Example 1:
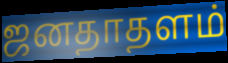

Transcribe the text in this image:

ஜனதாதளம்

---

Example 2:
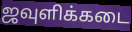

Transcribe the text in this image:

ஜவுளிக்கடை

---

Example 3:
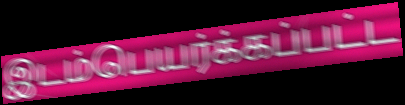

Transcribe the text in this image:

இடம்பெயர்க்கப்பட்ட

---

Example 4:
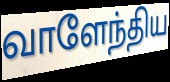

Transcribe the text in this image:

வாளேந்திய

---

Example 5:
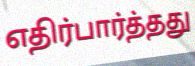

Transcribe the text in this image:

எதிர்பார்த்தது